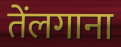
तेंलगाना